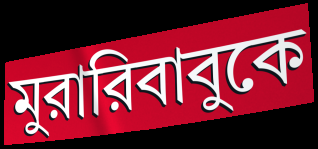
মুরারিবাবুকে